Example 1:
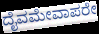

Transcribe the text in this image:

ದೈವಮೇವಾಪರೇ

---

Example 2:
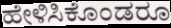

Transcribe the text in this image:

ಹೇಳಿಸಿಕೊಂಡರೂ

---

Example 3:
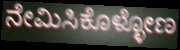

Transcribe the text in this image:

ನೇಮಿಸಿಕೊಳ್ಳೋಣ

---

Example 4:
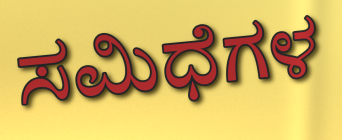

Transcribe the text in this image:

ಸಮಿಧೆಗಳ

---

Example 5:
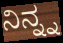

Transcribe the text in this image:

ನಿನ್ನ್ನ